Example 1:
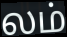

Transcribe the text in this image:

லம்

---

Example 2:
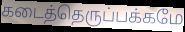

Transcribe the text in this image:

கடைத்தெருப்பக்கமே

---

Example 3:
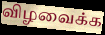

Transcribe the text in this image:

விழவைக்க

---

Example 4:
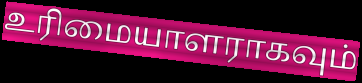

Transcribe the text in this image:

உரிமையாளராகவும்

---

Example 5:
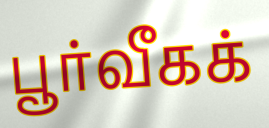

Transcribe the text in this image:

பூர்வீகக்